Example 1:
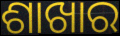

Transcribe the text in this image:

ଶାଖାର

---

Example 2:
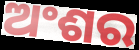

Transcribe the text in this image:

ଅଂଶର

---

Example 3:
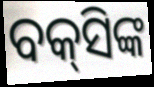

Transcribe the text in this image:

ବକ୍‌ସିଙ୍କ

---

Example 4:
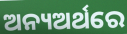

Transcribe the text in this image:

ଅନ୍ୟଅର୍ଥରେ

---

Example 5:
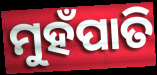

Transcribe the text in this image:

ମୁହଁପାତି